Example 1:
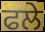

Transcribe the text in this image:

ਫਲੇ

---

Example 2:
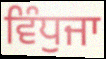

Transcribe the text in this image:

ਵਿੰਧੁਜਾ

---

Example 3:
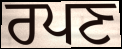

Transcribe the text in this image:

ਰਪਣ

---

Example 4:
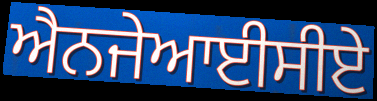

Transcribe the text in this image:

ਐਨਜੇਆਈਸੀਏ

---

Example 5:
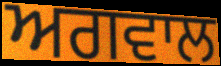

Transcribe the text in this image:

ਅਗਵਾਲ